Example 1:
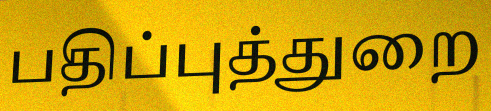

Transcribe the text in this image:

பதிப்புத்துறை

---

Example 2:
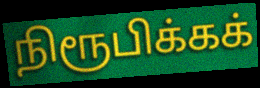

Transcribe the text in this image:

நிரூபிக்கக்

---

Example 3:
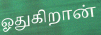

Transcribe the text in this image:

ஓதுகிறான்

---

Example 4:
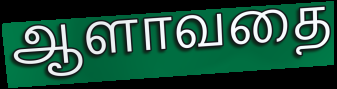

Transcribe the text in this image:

ஆளாவதை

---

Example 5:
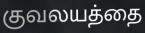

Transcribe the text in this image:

குவலயத்தை